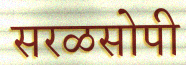
सरळसोपी